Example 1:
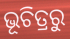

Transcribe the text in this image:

ଭୂଚିତ୍ରରୁ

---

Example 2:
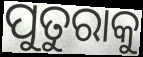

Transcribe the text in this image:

ପୁତୁରାକୁ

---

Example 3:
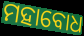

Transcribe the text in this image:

ମହାବୋଧ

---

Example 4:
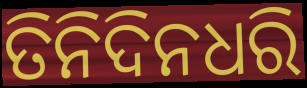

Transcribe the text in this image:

ତିନିଦିନଧରି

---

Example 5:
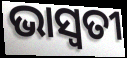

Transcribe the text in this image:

ଭାସ୍ବତୀ